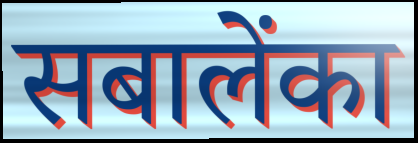
सबालेंका